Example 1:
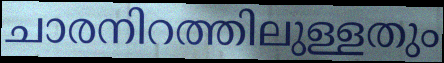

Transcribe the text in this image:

ചാരനിറത്തിലുള്ളതും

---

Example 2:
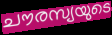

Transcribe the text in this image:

ചൗരസ്യയുടെ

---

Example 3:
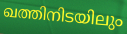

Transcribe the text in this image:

ഖത്തിനിടയിലും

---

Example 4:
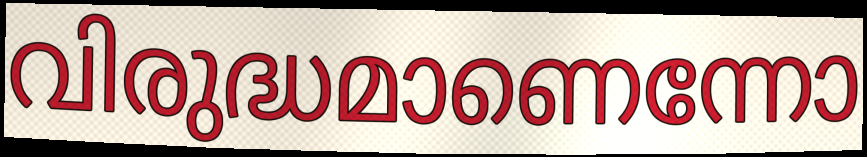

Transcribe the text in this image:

വിരുദ്ധമാണെന്നോ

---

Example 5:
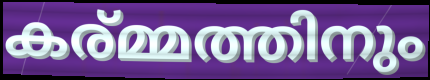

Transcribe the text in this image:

കര്മ്മത്തിനും